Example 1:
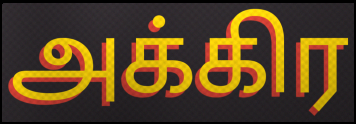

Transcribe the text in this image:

அக்கிர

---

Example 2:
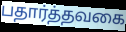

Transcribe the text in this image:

பதார்த்தவகை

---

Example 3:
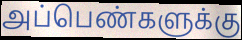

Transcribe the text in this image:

அப்பெண்களுக்கு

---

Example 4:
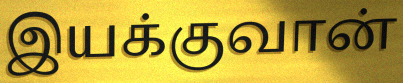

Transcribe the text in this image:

இயக்குவான்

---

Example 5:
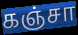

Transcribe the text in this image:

கஞ்சா